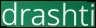
drashti